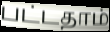
பட்டதாம்